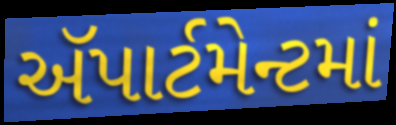
ઍપાર્ટમેન્ટમાં